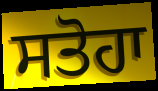
ਸਤੋਹਾ